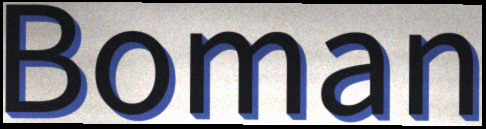
Boman